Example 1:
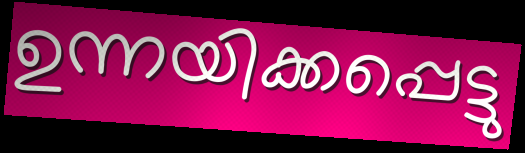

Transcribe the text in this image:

ഉന്നയിക്കപ്പെട്ടു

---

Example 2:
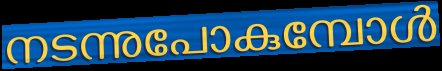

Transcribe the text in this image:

നടന്നുപോകുമ്പോൾ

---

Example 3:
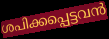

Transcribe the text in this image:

ശപിക്കപ്പെട്ടവൻ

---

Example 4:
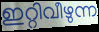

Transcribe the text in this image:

ഇറ്റിവീഴുന്ന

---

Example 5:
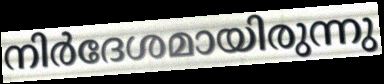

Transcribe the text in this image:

നിർദേശമായിരുന്നു